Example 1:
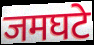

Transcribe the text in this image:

जमघटे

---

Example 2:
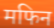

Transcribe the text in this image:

मफिन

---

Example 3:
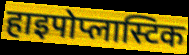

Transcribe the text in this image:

हाइपोप्लास्टिक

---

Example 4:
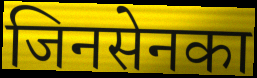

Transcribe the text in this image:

जिनसेनका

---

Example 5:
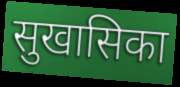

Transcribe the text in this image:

सुखासिका